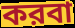
করবা